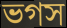
ভগস